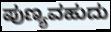
ಪುಣ್ಯವಹುದು